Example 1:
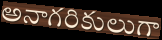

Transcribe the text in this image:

అనాగరికులుగా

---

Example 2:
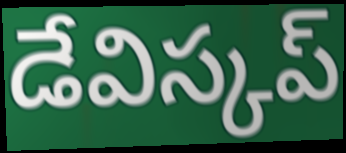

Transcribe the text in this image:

డేవిస్కప్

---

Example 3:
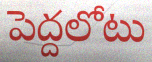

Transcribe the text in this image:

పెద్దలోటు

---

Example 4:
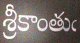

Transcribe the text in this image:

శ్రీకాంతుఁ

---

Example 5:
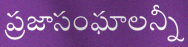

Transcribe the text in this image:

ప్రజాసంఘాలన్నీ